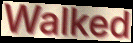
Walked